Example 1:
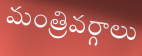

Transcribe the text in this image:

మంత్రివర్గాలు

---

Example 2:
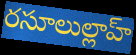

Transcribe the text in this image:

రసూలుల్లాహ్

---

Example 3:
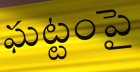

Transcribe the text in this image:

ఘట్టంపై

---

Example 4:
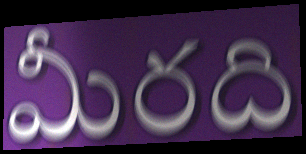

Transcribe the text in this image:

మీరది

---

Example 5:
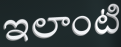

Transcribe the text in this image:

ఇలాంటి